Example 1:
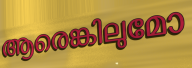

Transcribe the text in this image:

ആരെങ്കിലുമോ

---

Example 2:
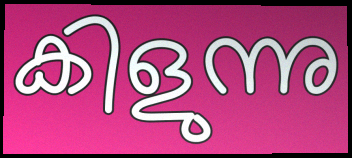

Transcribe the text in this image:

കിളുന്നു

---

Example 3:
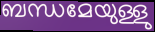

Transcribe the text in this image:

ബന്ധമേയുള്ളു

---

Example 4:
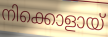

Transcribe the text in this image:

നിക്കൊളായ്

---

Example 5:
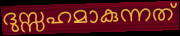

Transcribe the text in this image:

ദുസ്സഹമാകുന്നത്